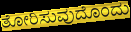
ತೋರಿಸುವುದೊಂದು